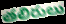
తలిరులు